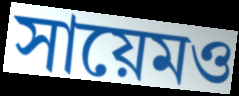
সায়েমও